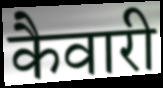
कैवारी